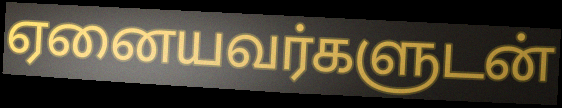
ஏனையவர்களுடன்